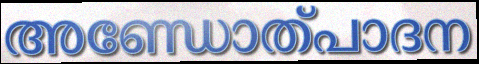
അണ്ഡോത്പാദന